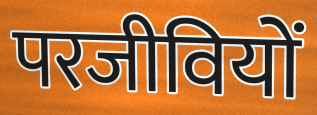
परजीवियों